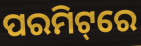
ପରମିଟ୍‌ରେ